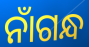
ନାଁଗନ୍ଧ